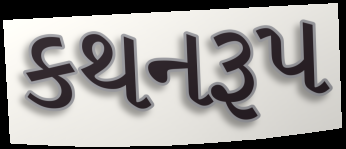
કથનરૂપ